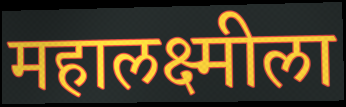
महालक्ष्मीला